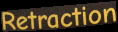
Retraction